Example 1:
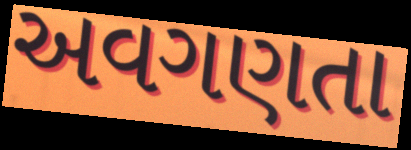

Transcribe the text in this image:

અવગણતા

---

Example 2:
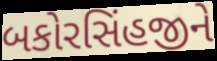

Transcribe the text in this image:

બકોરસિંહજીને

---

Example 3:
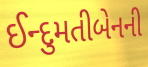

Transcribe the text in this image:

ઈન્દુમતીબેનની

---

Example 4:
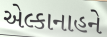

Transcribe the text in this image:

એલ્કાનાહને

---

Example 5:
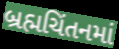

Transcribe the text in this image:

બ્રહ્મચિંતનમાં